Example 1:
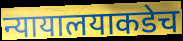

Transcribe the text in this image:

न्यायालयाकडेच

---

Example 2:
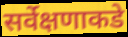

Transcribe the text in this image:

सर्वेक्षणाकडे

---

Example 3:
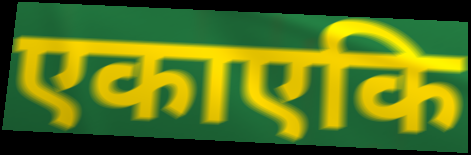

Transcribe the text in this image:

एकाएकि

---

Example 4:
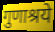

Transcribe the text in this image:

गुणाश्रये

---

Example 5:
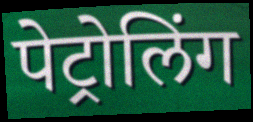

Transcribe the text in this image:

पेट्रोलिंग